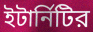
ইটার্নিটির